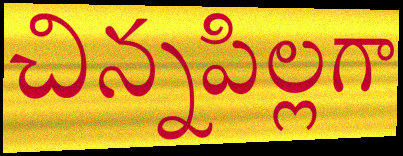
చిన్నపిల్లగా